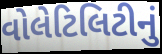
વોલેટિલિટીનું